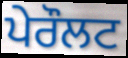
ਪੇਰੌਲਟ